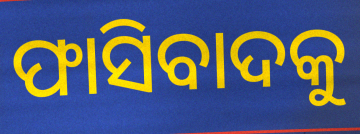
ଫାସିବାଦକୁ